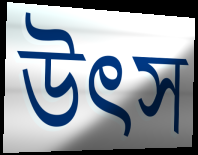
উত্‍স